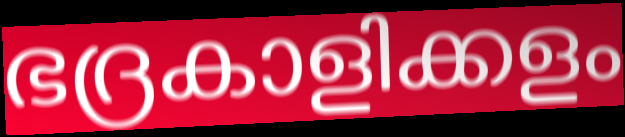
ഭദ്രകാളിക്കളം